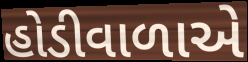
હોડીવાળાએ